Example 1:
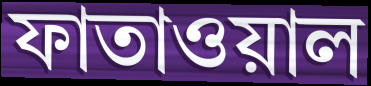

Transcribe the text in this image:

ফাতাওয়াল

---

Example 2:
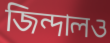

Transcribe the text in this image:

জিন্দালও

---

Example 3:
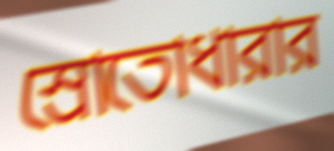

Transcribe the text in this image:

স্রোতোধারার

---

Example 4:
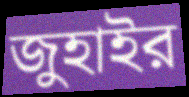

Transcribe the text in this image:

জুহাইর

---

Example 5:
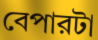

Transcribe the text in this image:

বেপারটা